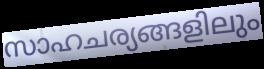
സാഹചര്യങ്ങളിലും